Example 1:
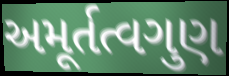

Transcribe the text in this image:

અમૂર્તત્વગુણ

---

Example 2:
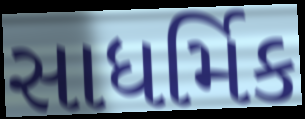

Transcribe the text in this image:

સાધર્મિક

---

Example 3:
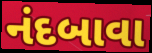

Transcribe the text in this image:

નંદબાવા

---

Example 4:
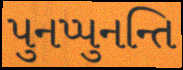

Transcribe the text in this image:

પુનપ્પુનન્તિ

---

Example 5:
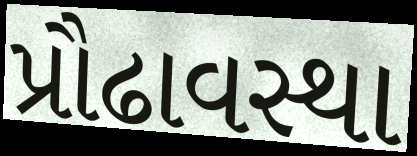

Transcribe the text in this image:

પ્રૌઢાવસ્થા